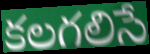
కలగలిసే